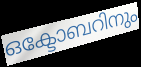
ഒക്ടോബറിനും